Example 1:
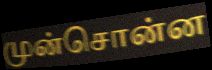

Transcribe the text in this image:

முன்சொன்ன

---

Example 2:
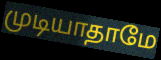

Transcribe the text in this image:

முடியாதாமே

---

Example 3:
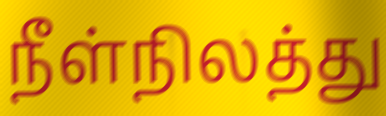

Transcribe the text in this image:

நீள்நிலத்து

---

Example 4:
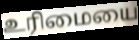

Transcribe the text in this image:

உரிமையை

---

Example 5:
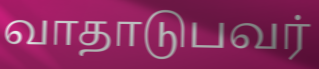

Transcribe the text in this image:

வாதாடுபவர்